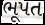
ભૂપત